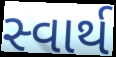
સ્વાર્થ